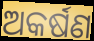
ଅକର୍ଷଣ